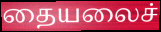
தையலைச்